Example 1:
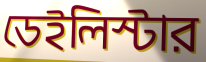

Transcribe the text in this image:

ডেইলিস্টার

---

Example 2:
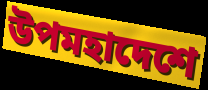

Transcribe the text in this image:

উপমহাদেশে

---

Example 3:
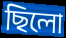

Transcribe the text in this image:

ছিলো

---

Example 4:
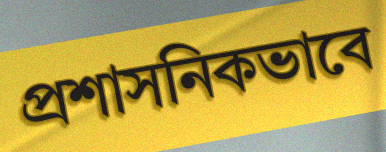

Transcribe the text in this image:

প্রশাসনিকভাবে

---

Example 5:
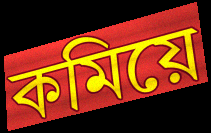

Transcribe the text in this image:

কমিয়ে